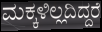
ಮಕ್ಕಳಿಲ್ಲದಿದ್ದರೆ